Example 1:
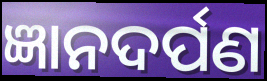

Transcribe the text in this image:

ଜ୍ଞାନଦର୍ପଣ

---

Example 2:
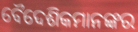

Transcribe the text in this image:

ବୈଦେଶିକମାନଙ୍କର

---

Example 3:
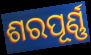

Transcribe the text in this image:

ଶରପୂର୍ଣ୍ଣ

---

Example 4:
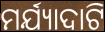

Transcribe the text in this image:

ମର୍ଯ୍ୟାଦାଟି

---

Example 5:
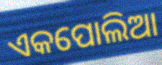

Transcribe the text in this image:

ଏକପୋଲିଆ